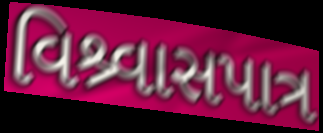
વિશ્ર્વાસપાત્ર